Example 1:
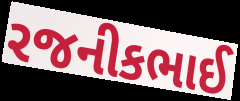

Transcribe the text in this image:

રજનીકભાઈ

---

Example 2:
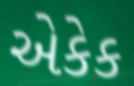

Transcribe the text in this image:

એકેક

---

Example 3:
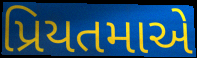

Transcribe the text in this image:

પ્રિયતમાએ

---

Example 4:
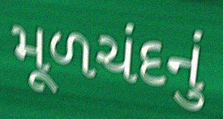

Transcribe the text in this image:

મૂળચંદનું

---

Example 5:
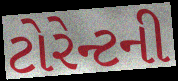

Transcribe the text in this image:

ટોરેન્ટની